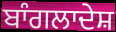
ਬਾੰਗਲਾਦੇਸ਼